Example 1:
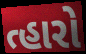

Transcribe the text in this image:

ત્હારો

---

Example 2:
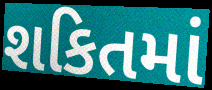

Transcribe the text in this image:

શકિતમાં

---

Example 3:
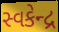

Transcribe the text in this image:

સ્વકેન્દ્ર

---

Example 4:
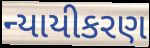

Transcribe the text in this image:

ન્યાયીકરણ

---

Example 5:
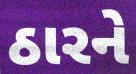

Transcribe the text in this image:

ઠારને